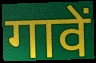
गावें